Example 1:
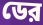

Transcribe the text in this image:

ডের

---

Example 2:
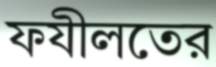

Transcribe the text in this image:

ফযীলতের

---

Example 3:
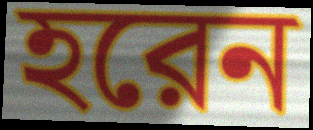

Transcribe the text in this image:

হরেন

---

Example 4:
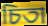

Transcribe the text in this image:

চিতা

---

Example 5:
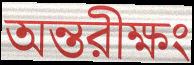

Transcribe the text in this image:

অন্তরীক্ষং